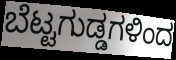
ಬೆಟ್ಟಗುಡ್ಡಗಳಿಂದ